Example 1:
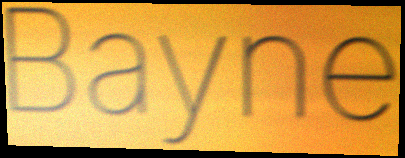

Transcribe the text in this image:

Bayne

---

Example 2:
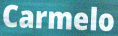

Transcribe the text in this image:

Carmelo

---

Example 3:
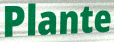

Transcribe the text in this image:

Plante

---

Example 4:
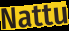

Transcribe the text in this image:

Nattu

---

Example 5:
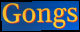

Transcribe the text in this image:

Gongs